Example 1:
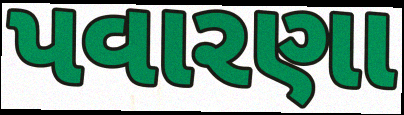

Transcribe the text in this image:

પવારણા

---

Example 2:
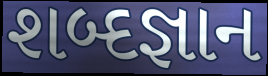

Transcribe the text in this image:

શબ્દજ્ઞાન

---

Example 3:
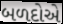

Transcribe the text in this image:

બળદોએ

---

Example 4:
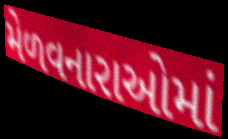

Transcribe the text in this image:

મેળવનારાઓમાં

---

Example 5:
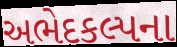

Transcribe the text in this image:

અભેદકલ્પના